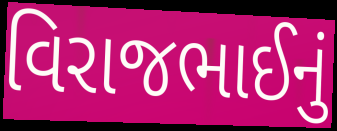
વિરાજભાઈનું